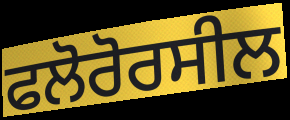
ਫਲੋਰੋਰਸੀਲ